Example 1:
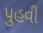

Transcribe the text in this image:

પુહવી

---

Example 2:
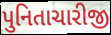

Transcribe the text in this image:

પુનિતાચારીજી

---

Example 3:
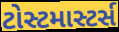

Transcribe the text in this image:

ટોસ્ટમાસ્ટર્સ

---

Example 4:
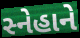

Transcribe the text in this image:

સ્નેહાને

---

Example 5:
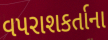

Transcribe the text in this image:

વપરાશકર્તાના